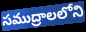
సముద్రాలలోని